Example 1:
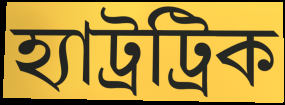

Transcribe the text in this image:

হ্যাট্রট্রিক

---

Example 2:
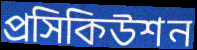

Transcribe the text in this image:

প্রসিকিউশন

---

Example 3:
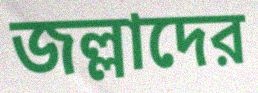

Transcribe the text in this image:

জল্লাদের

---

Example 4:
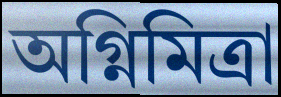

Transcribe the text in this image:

অগ্নিমিত্রা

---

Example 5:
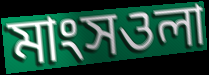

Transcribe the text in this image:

মাংসওলা